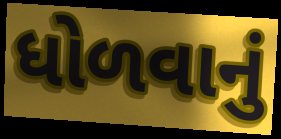
ધોળવાનું